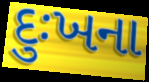
દુઃખના